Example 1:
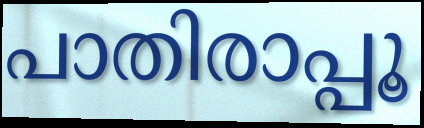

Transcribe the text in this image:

പാതിരാപ്പൂ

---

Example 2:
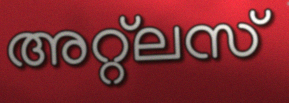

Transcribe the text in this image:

അറ്റ്ലസ്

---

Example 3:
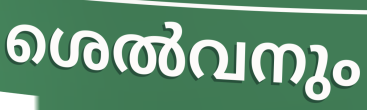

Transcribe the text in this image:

ശെൽവനും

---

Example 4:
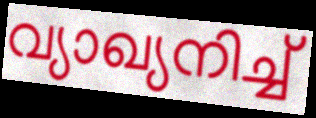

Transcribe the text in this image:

വ്യാഖ്യനിച്ച്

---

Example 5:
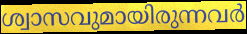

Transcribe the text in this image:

ശ്വാസവുമായിരുന്നവർ